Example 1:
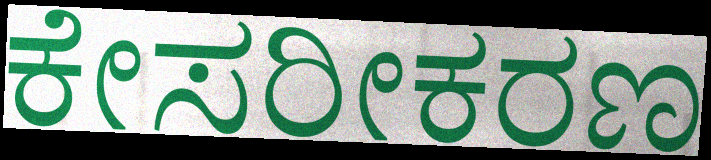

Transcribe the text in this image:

ಕೇಸರೀಕರಣ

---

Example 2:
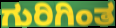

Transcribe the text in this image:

ಗುರಿಗಿಂತ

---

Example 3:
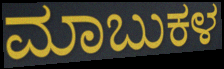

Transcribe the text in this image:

ಮಾಬುಕಳ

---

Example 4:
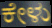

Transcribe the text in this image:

ಕೇಳು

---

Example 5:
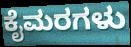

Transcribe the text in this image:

ಕೈಮರಗಳು